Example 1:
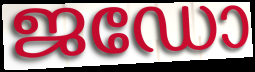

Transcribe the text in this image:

ജഡോ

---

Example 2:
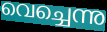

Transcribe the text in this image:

വെച്ചെന്നു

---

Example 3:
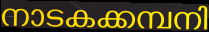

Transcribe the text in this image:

നാടകക്കമ്പനി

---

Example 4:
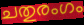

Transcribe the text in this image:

ചതുരംഗം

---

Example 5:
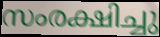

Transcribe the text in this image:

സംരക്ഷിച്ചു